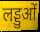
लड्डुओं